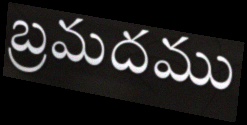
బ్రమదము